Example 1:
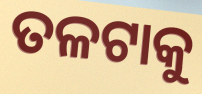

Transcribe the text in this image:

ତଳଟାକୁ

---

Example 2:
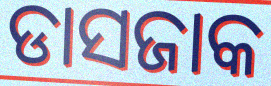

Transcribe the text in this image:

ଡାସଜାକ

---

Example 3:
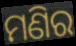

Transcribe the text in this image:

ମଣିର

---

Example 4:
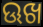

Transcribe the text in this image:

ଊଖ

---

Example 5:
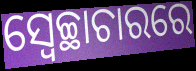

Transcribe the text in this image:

ସ୍ବେଚ୍ଛାଚାରରେ